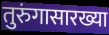
तुरुंगासारख्या